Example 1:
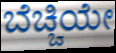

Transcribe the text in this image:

ಬೆಚ್ಚಿಯೇ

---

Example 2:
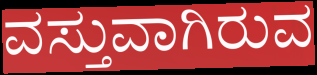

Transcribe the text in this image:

ವಸ್ತುವಾಗಿರುವ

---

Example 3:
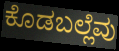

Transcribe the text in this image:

ಕೊಡಬಲ್ಲೆವು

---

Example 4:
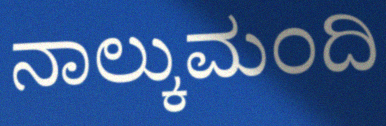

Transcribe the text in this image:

ನಾಲ್ಕುಮಂದಿ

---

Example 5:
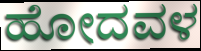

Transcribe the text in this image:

ಹೋದವಳ